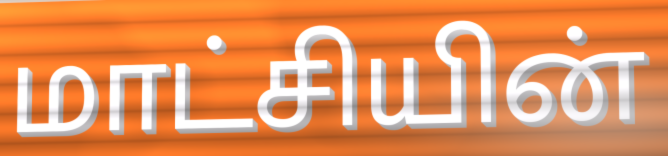
மாட்சியின்